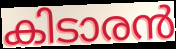
കിടാരൻ